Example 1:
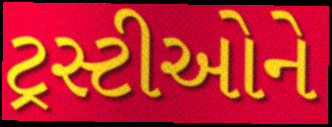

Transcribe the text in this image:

ટ્રસ્ટીઓને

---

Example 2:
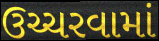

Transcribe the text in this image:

ઉચ્ચરવામાં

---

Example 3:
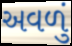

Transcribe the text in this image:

અવળું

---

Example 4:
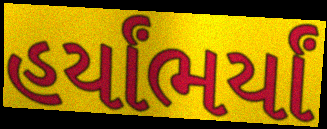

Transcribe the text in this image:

હર્યાંભર્યાં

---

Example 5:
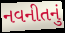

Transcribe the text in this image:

નવનીતનું